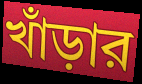
খাঁড়ার